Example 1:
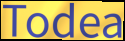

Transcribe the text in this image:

Todea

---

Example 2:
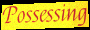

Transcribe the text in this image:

Possessing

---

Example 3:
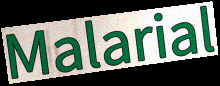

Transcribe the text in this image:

Malarial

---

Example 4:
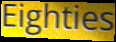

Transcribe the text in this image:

Eighties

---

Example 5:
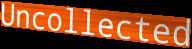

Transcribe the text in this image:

Uncollected